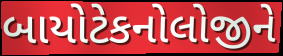
બાયોટેકનોલોજીને